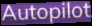
Autopilot